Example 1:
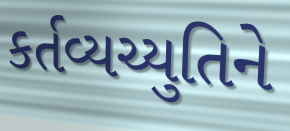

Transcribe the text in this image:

કર્તવ્યચ્યુતિને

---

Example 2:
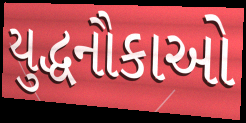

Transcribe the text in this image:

યુદ્ધનૌકાઓ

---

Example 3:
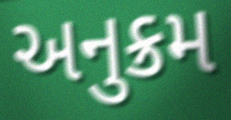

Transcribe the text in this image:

અનુક્રમ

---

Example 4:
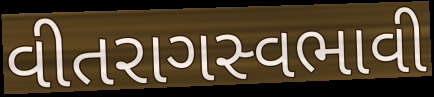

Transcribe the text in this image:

વીતરાગસ્વભાવી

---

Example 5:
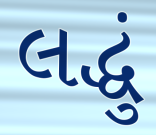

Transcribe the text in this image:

લદ્ધું